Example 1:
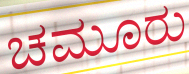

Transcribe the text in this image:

ಚಮೂರು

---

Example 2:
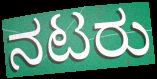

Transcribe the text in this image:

ನಟರು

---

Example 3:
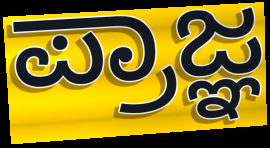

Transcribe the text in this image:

ಪ್ರಾಜ್ಞ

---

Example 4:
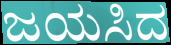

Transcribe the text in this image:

ಜಯಸಿದ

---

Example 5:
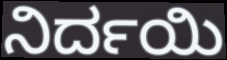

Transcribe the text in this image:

ನಿರ್ದಯಿ